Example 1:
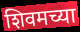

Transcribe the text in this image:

शिवमच्या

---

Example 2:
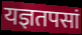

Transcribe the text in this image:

यज्ञतपसां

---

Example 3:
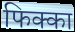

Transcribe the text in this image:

फिक्का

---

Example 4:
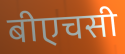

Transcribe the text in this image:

बीएचसी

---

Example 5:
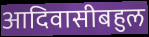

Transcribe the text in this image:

आदिवासीबहुल